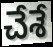
చేశే